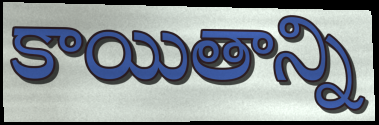
కాయితాన్ని